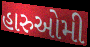
હારુઓમી